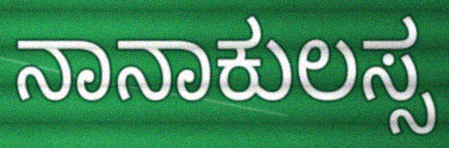
ನಾನಾಕುಲಸ್ಸ